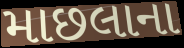
માછલાના